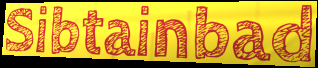
Sibtainbad